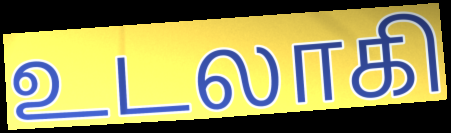
உடலாகி